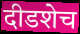
दीडशेच